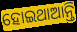
ହୋଇଥାଆନ୍ତି